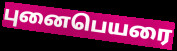
புனைபெயரை